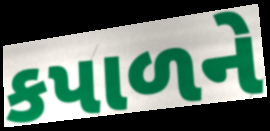
કપાળને